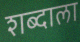
शब्दाला